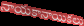
నాయకానాయికలు